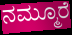
ನಮ್ಮೂರೆ